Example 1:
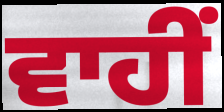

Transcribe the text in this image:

ਵਾਹੀਂ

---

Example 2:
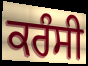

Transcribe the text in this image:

ਕਰੰਸੀ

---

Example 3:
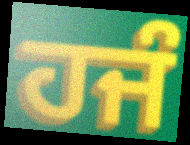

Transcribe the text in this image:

ਹਜੰ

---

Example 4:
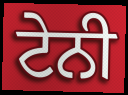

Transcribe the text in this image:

ਟੇਨੀ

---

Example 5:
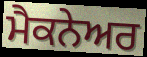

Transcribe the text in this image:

ਮੈਕਨੇਅਰ